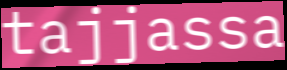
tajjassa